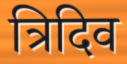
त्रिदिव